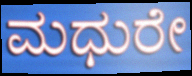
ಮಧುರೇ